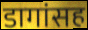
डागांसह